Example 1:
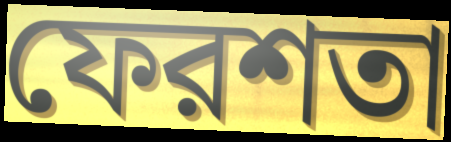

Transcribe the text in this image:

ফেরশতা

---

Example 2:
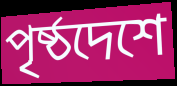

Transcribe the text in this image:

পৃষ্ঠদেশে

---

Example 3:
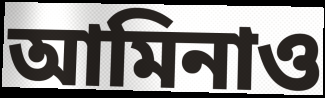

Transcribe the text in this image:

আমিনাও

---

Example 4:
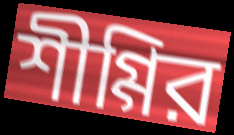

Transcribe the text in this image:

শীগ্গির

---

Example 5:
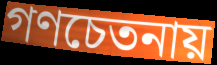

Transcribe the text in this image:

গণচেতনায়